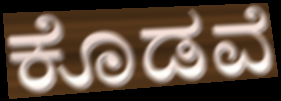
ಕೊಡವೆ